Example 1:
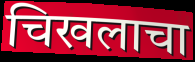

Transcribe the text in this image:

चिखलाचा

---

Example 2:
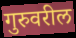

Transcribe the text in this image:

गुरुवरील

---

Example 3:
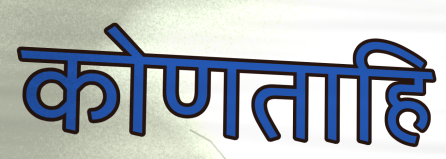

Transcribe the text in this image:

कोणताहि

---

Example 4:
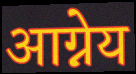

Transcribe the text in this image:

आग्नेय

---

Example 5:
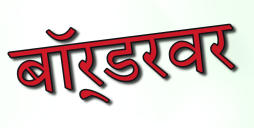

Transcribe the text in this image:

बॉर्डरवर